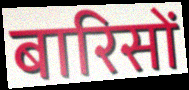
बारिसों